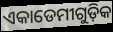
ଏକାଡେମୀଗୁଡ଼ିକ